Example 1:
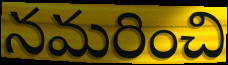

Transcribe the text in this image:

నమరించి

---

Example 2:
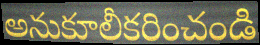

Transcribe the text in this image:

అనుకూలీకరించండి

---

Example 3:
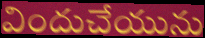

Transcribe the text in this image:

విందుచేయును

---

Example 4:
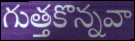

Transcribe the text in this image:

గుత్తకొన్నవా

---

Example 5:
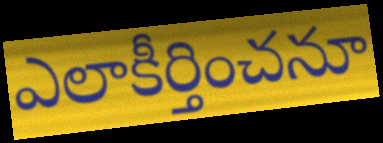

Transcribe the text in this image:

ఎలాకీర్తించనూ